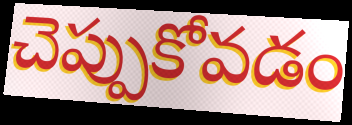
చెప్పుకోవడం